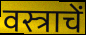
वस्त्राचें